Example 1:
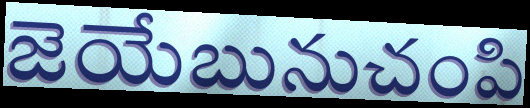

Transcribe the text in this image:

జెయేబునుచంపి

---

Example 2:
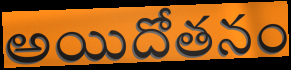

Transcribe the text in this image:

అయిదోతనం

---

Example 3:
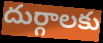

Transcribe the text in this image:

దుర్గాలకు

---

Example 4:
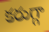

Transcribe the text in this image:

కరుగ్గా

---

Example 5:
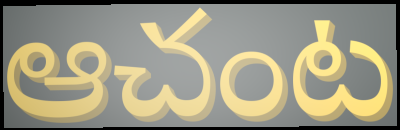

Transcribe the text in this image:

ఆచంట